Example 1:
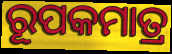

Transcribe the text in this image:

ରୂପକମାତ୍ର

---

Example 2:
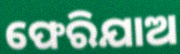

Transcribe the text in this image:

ଫେରିଯାଅ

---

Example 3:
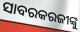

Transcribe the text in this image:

ସାବରକରଜୀଙ୍କୁ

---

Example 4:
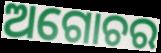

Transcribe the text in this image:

ଅଗୋଚର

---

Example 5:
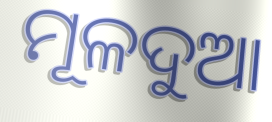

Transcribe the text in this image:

ମୂଳଦୁଆ